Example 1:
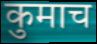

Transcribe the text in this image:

कुमाच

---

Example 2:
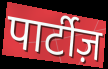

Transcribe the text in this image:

पार्टीज़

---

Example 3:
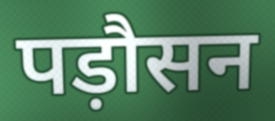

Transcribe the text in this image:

पड़ौसन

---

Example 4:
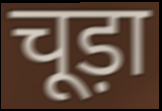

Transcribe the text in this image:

चूड़ा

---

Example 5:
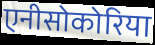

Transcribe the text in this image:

एनीसोकोरिया